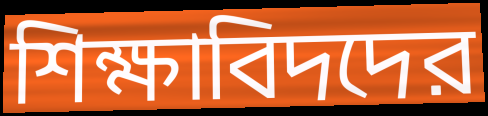
শিক্ষাবিদদের